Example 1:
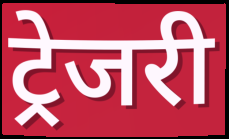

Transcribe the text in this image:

ट्रेजरी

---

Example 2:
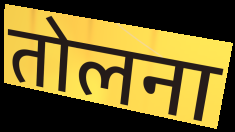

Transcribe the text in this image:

तोलना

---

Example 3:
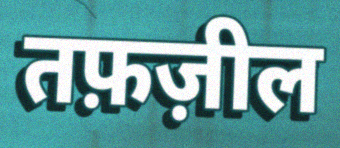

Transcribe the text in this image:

तफ़ज़ील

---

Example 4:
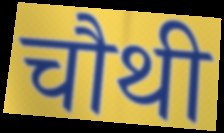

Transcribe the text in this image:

चौथी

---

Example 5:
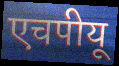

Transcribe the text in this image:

एचपीयू